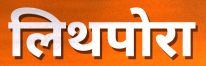
लिथपोरा